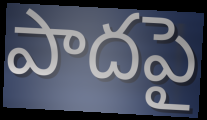
పాదపై